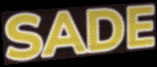
SADE